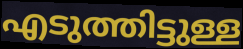
എടുത്തിട്ടുള്ള